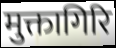
मुक्तागिरि